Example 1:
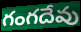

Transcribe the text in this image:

గంగదేవు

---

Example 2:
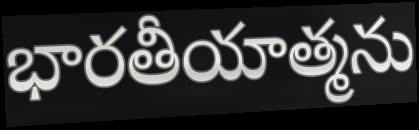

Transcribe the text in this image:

భారతీయాత్మను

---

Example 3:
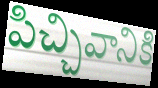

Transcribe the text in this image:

పిచ్చివానికి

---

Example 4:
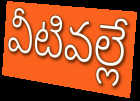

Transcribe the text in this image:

వీటివల్లే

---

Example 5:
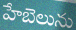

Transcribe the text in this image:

హేబెలును